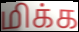
மிக்க